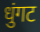
धुंगट